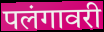
पलंगावरी